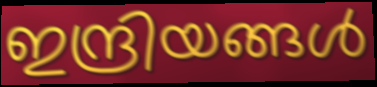
ഇന്ദ്രിയങ്ങൾ